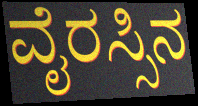
ವೈರಸ್ಸಿನ